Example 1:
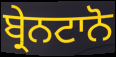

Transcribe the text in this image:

ਬ੍ਰੇਨਟਾਨੋ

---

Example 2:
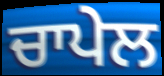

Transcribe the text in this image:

ਚਾਪੇਲ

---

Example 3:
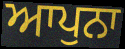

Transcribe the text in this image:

ਆਪੁਨਾ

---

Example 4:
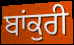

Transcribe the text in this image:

ਬਾਂਕੁਰੀ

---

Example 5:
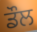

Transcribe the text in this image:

ਡੌਲ